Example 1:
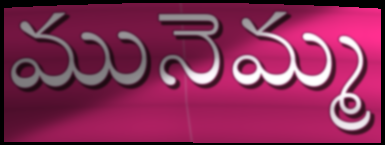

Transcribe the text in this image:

మునెమ్మ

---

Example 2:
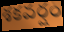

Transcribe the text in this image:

శకవర్షం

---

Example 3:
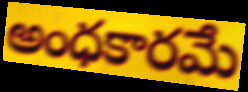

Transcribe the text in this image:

అంధకారమే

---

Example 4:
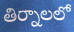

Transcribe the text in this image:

తిర్నాలలో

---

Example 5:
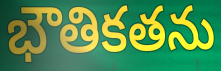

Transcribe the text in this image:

భౌతికతను